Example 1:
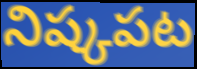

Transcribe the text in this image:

నిష్కపట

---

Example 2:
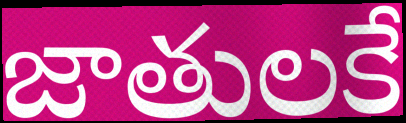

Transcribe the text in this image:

జాతులకే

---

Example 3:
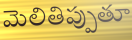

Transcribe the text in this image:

మెలితిప్పుతూ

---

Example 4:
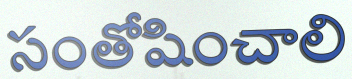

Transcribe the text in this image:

సంతోషించాలి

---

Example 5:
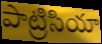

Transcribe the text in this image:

పాట్రిసియా